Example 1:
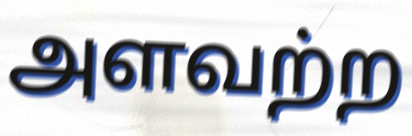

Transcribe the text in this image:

அளவற்ற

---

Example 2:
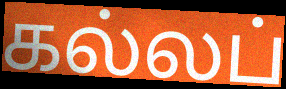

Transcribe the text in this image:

கல்லப்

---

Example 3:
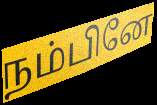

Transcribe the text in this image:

நம்பினே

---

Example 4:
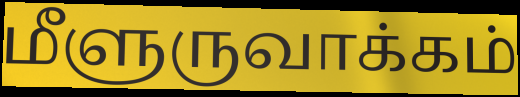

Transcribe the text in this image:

மீளுருவாக்கம்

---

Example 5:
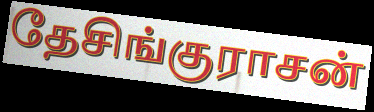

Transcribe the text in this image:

தேசிங்குராசன்